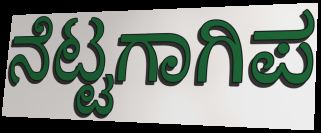
ನೆಟ್ಟಗಾಗಿಪ